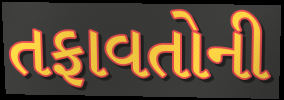
તફાવતોની